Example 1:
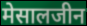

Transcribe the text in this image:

मेसालजीन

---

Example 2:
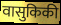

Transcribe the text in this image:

वासुकिकी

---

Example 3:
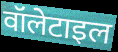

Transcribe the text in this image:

वॉलेटाइल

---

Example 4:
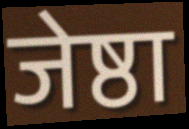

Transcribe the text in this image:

जेष्ठा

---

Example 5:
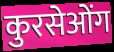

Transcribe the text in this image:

कुरसेओंग